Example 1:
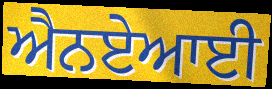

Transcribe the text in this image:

ਐਨਏਆਈ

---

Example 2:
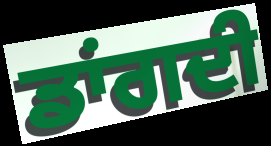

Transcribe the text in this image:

ਡਾਂਗਦੀ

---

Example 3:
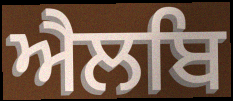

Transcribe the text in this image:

ਐਲਬਿ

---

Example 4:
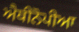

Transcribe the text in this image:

ਐਥੀਨੋਪੀਆ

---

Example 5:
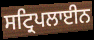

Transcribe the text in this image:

ਸਟ੍ਰਿਪਲਾਈਨ